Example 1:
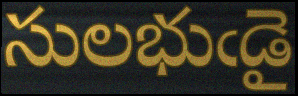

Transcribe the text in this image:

సులభుఁడై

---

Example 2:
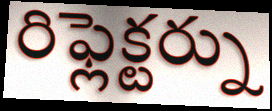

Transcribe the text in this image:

రిఫ్లెక్టర్ను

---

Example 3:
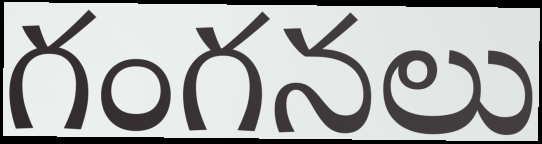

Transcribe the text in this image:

గంగనలు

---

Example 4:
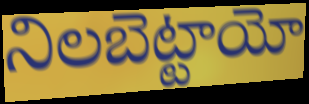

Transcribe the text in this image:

నిలబెట్టాయో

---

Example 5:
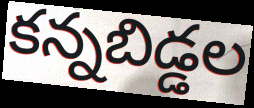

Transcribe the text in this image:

కన్నబిడ్డల